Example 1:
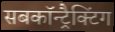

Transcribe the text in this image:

सबकॉन्ट्रैक्टिंग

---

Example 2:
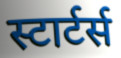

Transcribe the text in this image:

स्टार्टर्स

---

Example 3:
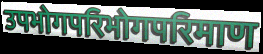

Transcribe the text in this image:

उपभोगपरिभोगपरिमाण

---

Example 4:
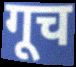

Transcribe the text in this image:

गूच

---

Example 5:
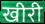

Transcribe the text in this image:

खीरी